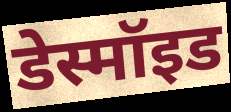
डेस्मॉइड